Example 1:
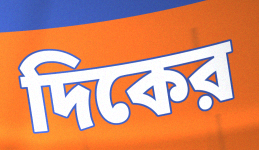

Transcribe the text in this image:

দিকের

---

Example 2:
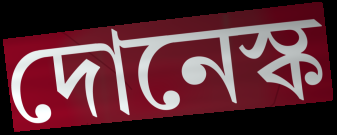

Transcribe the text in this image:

দোনেস্ক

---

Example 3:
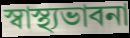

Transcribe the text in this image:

স্বাস্থ্যভাবনা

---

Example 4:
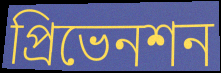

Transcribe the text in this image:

প্রিভেনশন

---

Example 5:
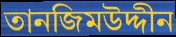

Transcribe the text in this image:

তানজিমউদ্দীন